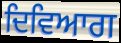
ਦਿਵਿਆਗ